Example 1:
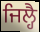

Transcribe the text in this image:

ਜਿਲ੍ਹੈ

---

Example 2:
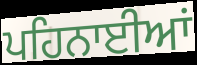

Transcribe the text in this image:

ਪਹਿਨਾਈਆਂ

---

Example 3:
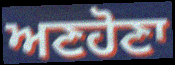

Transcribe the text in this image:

ਅਣਹੋਣਾ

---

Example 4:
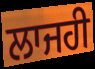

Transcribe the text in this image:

ਲਾਜਹੀ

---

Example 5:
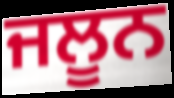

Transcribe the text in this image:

ਜਲੂਨ